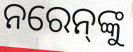
ନରେନ୍‌ଙ୍କୁ